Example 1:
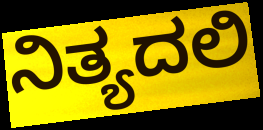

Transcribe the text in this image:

ನಿತ್ಯದಲಿ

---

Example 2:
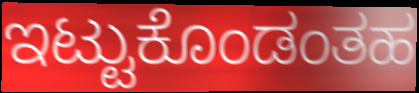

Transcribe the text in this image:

ಇಟ್ಟುಕೊಂಡಂತಹ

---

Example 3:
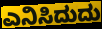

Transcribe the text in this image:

ಎನಿಸಿದುದು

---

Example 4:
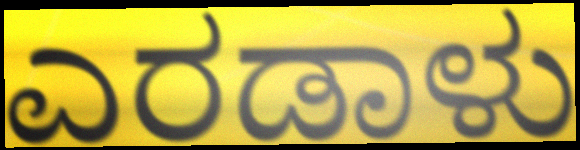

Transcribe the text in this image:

ಎರಡಾಳು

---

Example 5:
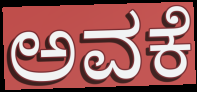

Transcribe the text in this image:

ಅವಕೆ